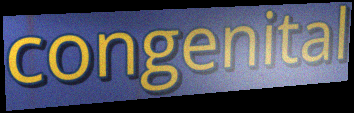
congenital